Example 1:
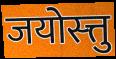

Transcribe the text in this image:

जयोस्त्तु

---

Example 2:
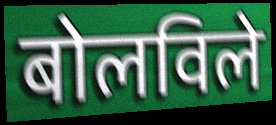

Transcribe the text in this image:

बोलविले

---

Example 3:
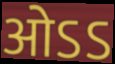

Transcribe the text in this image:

ओऽऽ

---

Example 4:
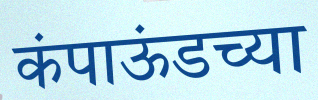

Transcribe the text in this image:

कंपाऊंडच्या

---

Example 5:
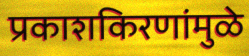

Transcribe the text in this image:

प्रकाशकिरणांमुळे